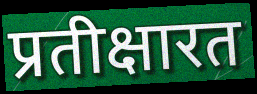
प्रतीक्षारत